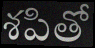
శపితో